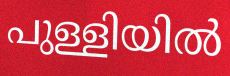
പുള്ളിയിൽ